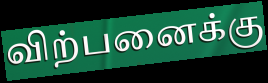
விற்பனைக்கு